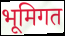
भूमिगत